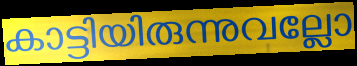
കാട്ടിയിരുന്നുവല്ലോ